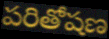
పరితోషణ